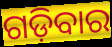
ଗଡ଼ିବାର